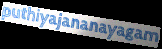
puthiyajananayagam